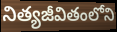
నిత్యజీవితంలోని